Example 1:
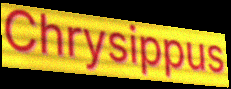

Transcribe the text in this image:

Chrysippus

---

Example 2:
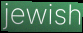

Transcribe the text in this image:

jewish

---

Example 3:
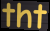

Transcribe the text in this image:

tht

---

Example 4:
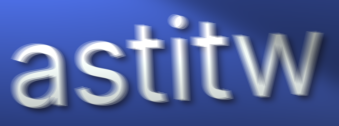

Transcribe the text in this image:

astitw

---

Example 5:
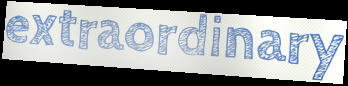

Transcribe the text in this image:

extraordinary